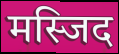
मस्जिद